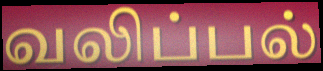
வலிப்பல்